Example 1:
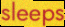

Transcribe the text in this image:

sleeps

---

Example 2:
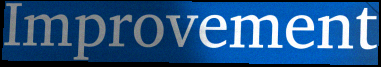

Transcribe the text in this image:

Improvement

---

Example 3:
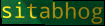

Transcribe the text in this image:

sitabhog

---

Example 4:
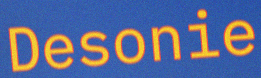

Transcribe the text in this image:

Desonie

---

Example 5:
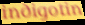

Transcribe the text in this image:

indigotin